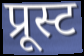
प्रूस्ट